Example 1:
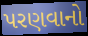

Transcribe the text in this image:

પરણવાનો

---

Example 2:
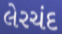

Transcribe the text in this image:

લેરચંદ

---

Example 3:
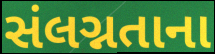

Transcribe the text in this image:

સંલગ્નતાના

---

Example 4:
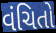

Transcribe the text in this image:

વંચિતો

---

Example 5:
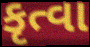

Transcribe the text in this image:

કૃત્વા